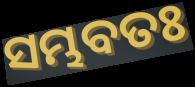
ସମ୍ଭବତଃ